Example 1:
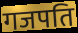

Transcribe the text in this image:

गजपति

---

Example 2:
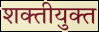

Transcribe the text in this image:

शक्तीयुक्त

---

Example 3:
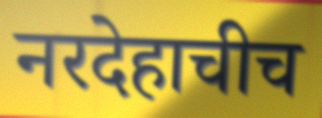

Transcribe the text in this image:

नरदेहाचीच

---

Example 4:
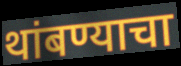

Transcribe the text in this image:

थांबण्याचा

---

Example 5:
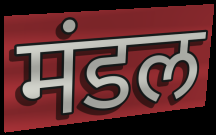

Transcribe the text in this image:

मंडल